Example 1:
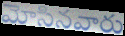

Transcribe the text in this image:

మోసినవారు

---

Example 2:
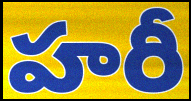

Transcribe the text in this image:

హరీ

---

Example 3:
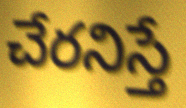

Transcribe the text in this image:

చేరనిస్తే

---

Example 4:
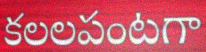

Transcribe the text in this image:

కలలపంటగా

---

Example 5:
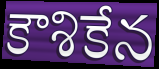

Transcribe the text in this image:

కౌశికేన